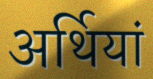
अर्थियां